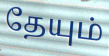
தேயும்